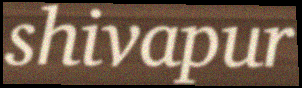
shivapur